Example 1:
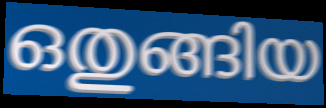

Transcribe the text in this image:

ഒതുങ്ങിയ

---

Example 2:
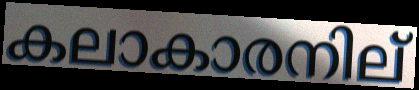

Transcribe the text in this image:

കലാകാരനില്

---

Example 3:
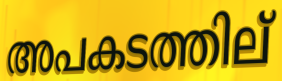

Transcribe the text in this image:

അപകടത്തില്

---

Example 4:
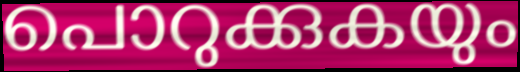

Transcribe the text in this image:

പൊറുക്കുകയും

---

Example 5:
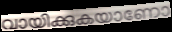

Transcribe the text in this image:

വായിക്കുകയാണോ